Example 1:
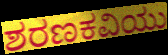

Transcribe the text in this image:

ಶರಣಕವಿಯು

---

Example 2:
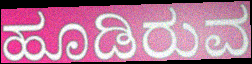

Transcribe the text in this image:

ಹೂಡಿರುವ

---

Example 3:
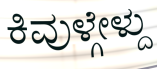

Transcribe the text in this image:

ಕಿವುಳ್ಗೇಳ್ದು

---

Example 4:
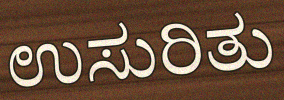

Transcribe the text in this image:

ಉಸುರಿತು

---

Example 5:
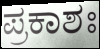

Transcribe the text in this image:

ಪ್ರಕಾಶಃ